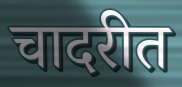
चादरीत